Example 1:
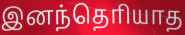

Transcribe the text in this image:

இனந்தெரியாத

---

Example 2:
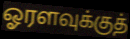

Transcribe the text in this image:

ஓரளவுக்குத்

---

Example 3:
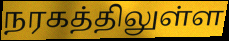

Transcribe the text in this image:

நரகத்திலுள்ள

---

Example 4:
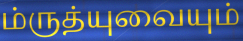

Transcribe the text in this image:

ம்ருத்யுவையும்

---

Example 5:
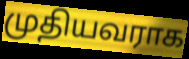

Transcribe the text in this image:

முதியவராக